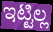
ಇಟ್ಟಿಲ್ಲ